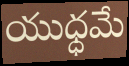
యుధ్ధమే